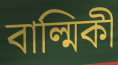
বাল্মিকী